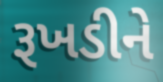
રૂખડીને